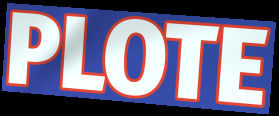
PLOTE